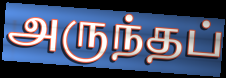
அருந்தப்